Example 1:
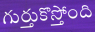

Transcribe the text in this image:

గుర్తుకొస్తోంది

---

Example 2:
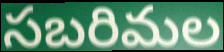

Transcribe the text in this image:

సబరిమల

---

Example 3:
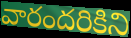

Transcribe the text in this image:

వారందరికిని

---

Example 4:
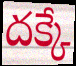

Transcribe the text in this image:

దక్కే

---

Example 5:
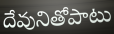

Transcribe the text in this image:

దేవునితోపాటు